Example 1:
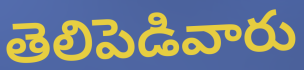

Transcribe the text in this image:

తెలిపెడివారు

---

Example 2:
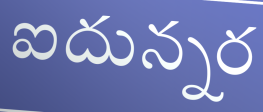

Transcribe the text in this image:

ఐదున్నర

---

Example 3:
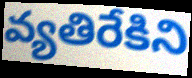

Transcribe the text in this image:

వ్యతిరేకిని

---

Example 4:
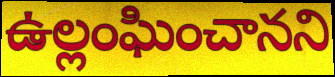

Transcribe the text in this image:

ఉల్లంఘించానని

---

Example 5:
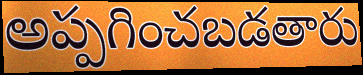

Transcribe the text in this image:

అప్పగించబడతారు